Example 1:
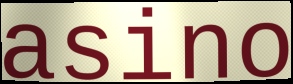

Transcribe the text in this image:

asino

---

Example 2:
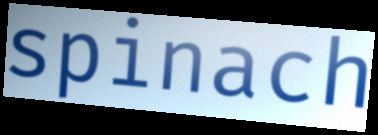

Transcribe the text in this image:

spinach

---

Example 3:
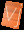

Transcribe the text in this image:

vj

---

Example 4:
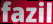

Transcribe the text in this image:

fazil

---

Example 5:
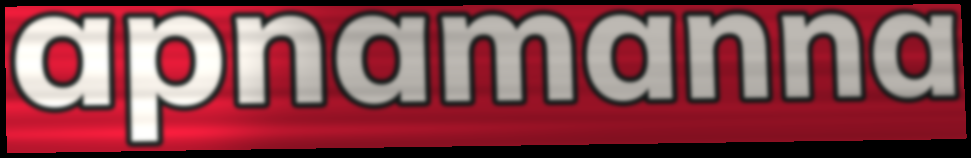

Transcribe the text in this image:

apnamanna